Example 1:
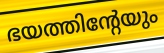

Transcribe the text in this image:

ഭയത്തിന്റേയും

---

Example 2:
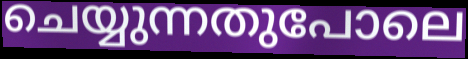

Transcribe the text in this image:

ചെയ്യുന്നതുപോലെ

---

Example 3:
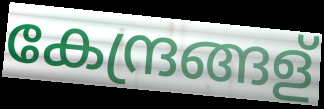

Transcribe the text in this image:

കേന്ദ്രങ്ങള്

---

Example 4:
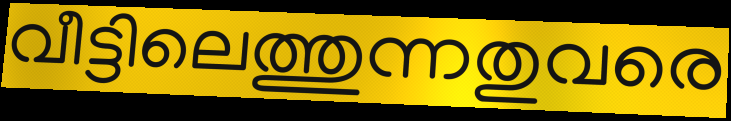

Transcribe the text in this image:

വീട്ടിലെത്തുന്നതുവരെ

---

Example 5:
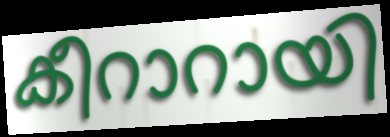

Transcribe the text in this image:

കീറാറായി